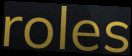
roles